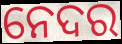
ନେଦର